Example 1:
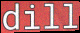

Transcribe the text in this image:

dill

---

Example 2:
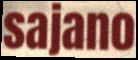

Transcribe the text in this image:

sajano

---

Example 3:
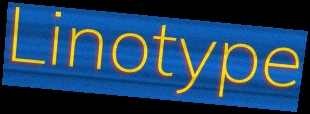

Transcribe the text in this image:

Linotype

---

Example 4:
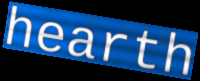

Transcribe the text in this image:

hearth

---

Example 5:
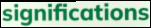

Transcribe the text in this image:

significations